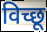
विच्छू